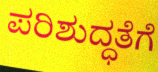
ಪರಿಶುದ್ಧತೆಗೆ